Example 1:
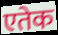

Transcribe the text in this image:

एतेक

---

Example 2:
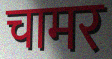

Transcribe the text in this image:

चामर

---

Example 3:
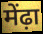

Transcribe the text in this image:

मेंढ़ा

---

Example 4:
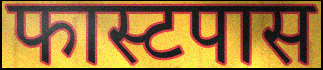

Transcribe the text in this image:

फास्टपास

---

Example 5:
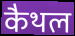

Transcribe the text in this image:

कैथल